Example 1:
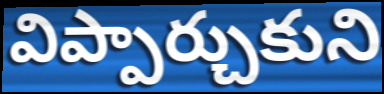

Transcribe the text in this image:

విప్పార్చుకుని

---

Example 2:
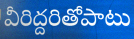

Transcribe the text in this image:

వీరిద్దరితోపాటు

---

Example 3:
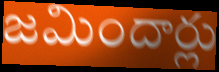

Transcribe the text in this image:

జమిందార్లు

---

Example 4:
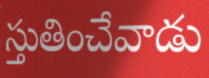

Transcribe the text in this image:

స్తుతించేవాడు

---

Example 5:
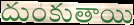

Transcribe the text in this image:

దుంకుతాయి